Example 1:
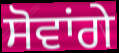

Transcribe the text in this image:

ਸੋਵਾਂਗੇ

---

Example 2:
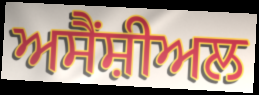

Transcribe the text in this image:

ਅਸੈਂਸ਼ੀਅਲ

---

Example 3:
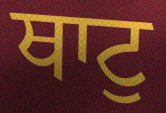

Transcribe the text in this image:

ਥਾਟੁ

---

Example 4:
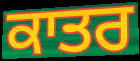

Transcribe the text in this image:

ਕਾਤਰ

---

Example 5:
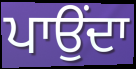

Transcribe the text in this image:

ਪਾਉਂਦਾ